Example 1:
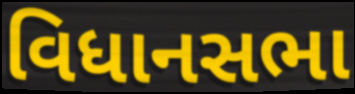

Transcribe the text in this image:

વિધાનસભા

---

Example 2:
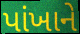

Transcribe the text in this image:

પાંખાને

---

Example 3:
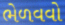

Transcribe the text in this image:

ભેળવવો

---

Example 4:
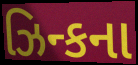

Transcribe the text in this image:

ઝિન્કના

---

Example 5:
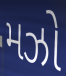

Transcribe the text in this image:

મઝો